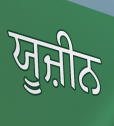
ਯੂਜ਼ੀਨ